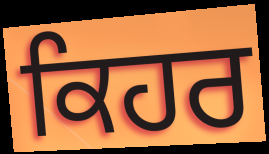
ਕਿਹਰ